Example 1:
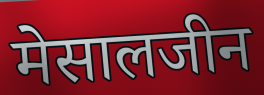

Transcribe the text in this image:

मेसालजीन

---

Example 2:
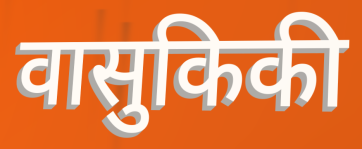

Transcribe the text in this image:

वासुकिकी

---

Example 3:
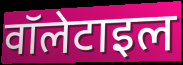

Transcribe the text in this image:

वॉलेटाइल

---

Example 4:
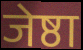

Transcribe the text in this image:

जेष्ठा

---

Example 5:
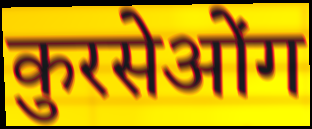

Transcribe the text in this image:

कुरसेओंग